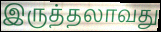
இருத்தலாவது